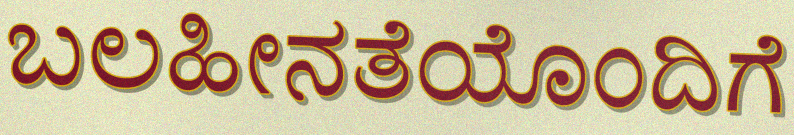
ಬಲಹೀನತೆಯೊಂದಿಗೆ